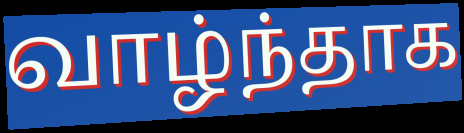
வாழ்ந்தாக